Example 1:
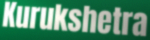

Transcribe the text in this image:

Kurukshetra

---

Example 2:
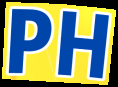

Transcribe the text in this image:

PH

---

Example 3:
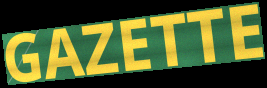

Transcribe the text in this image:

GAZETTE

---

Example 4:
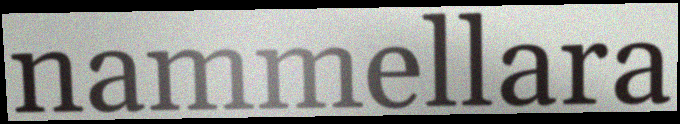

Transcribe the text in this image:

nammellara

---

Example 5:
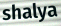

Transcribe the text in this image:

shalya